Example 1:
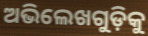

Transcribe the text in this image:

ଅଭିଲେଖଗୁଡ଼ିକୁ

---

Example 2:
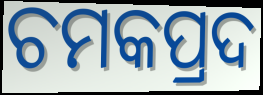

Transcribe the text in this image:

ଚମକପ୍ରଦ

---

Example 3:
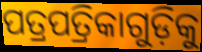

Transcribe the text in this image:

ପତ୍ରପତ୍ରିକାଗୁଡ଼ିକୁ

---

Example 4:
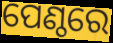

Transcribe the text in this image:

ପେଣ୍ଠରେ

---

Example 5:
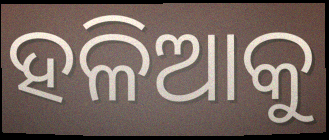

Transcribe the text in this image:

ହଳିଆକୁ